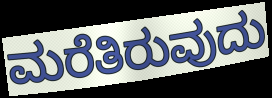
ಮರೆತಿರುವುದು